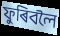
ফুৰিবলৈ